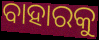
ବାହାରକୁ